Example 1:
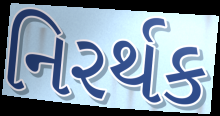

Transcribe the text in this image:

નિરર્થક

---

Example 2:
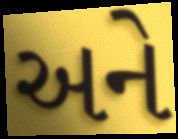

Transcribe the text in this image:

અને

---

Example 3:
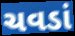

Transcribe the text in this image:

ચવડાં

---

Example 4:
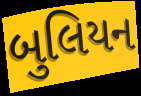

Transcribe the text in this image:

બુલિયન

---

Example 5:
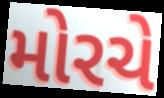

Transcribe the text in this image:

મોરચે